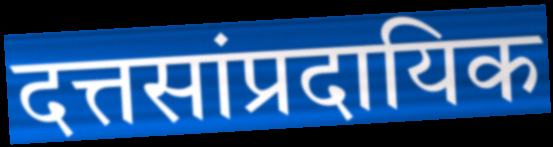
दत्तसांप्रदायिक